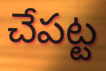
చేపట్ట